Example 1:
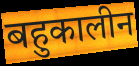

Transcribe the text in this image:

बहुकालीन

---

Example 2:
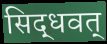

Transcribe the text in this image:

सिद्धवत्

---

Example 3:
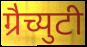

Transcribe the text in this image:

ग्रैच्युटी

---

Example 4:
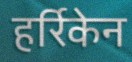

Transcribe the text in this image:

हर्रिकेन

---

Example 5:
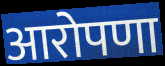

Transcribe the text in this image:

आरोपणा